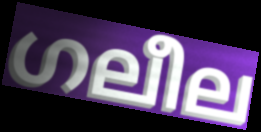
ഗലീല